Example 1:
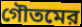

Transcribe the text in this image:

গৌতমের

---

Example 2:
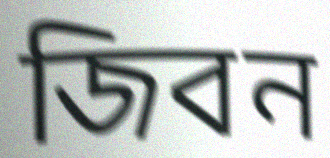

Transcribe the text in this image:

জিবন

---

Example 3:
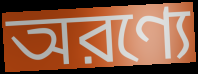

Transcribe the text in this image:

অরণ্যে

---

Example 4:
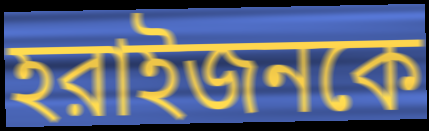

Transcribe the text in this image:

হরাইজনকে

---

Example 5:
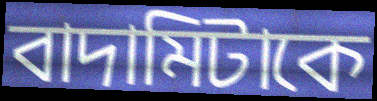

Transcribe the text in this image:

বাদামিটাকে